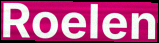
Roelen